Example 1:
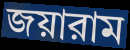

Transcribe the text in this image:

জয়ারাম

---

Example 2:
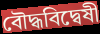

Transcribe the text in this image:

বৌদ্ধবিদ্বেষী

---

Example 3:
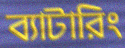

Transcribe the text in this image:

ব্যাটারিং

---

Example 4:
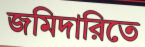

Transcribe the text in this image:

জমিদারিতে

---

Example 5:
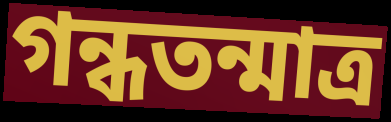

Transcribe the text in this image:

গন্ধতন্মাত্র